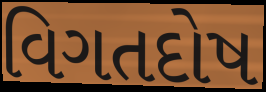
વિગતદોષ